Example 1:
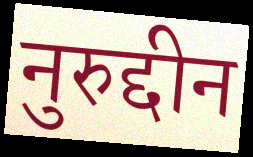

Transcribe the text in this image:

नुरुद्दीन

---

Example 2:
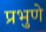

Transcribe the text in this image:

प्रभुणे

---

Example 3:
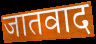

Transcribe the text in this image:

जातवाद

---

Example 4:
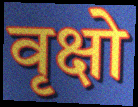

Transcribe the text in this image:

वृक्षो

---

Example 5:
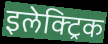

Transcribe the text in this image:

इलेक्ट्रिक